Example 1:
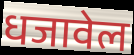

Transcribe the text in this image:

धजावेल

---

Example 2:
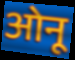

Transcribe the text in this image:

ओनू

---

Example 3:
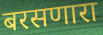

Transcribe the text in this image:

बरसणारा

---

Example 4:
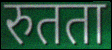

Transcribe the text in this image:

रुतता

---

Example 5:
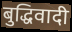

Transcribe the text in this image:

बुद्धिवादी